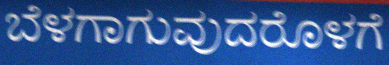
ಬೆಳಗಾಗುವುದರೊಳಗೆ